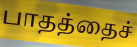
பாதத்தைச்